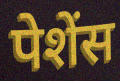
पेशेंस